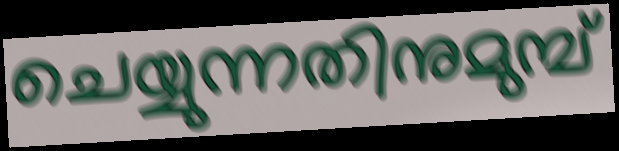
ചെയ്യുന്നതിനുമുമ്പ്